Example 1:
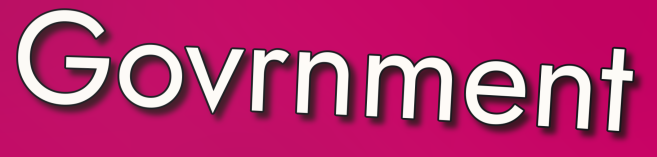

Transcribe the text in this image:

Govrnment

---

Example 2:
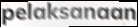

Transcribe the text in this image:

pelaksanaan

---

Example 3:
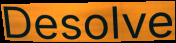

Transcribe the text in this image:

Desolve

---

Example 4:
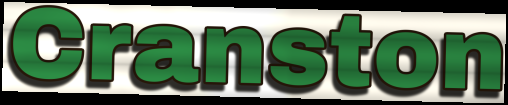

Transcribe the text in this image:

Cranston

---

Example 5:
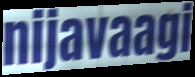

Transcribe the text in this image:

nijavaagi